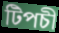
টিপচী